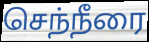
செந்நீரை